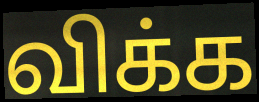
விக்க